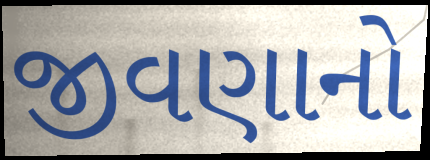
જીવણાનો